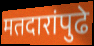
मतदारांपुढे